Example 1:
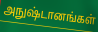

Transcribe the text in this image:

அநுஷ்டானங்கள்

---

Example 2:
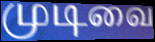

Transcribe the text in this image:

முடிவை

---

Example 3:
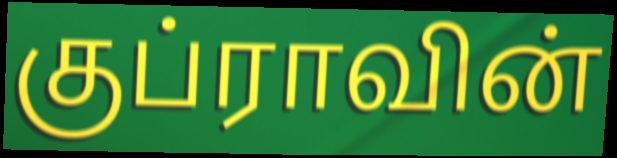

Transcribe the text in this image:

குப்ராவின்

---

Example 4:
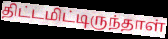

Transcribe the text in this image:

திட்டமிட்டிருந்தாள்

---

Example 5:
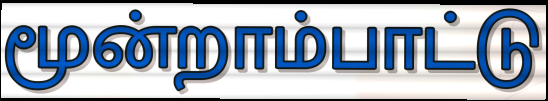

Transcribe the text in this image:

மூன்றாம்பாட்டு